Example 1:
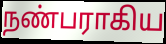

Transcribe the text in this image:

நண்பராகிய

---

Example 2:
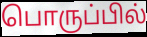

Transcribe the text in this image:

பொருப்பில்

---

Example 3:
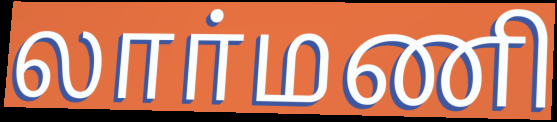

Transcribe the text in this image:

லார்மணி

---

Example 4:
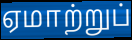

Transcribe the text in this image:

ஏமாற்றுப்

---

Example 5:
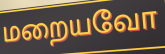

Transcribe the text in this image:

மறையவோ